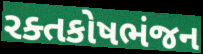
રક્તકોષભંજન